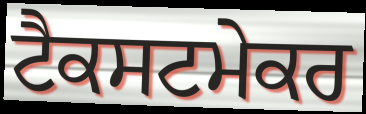
ਟੈਕਸਟਮੇਕਰ